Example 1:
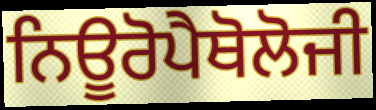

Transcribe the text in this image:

ਨਿਊਰੋਪੈਥੋਲੋਜੀ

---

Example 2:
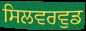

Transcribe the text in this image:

ਸਿਲਵਰਵੁਡ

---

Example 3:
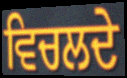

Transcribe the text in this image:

ਵਿਚਲਦੇ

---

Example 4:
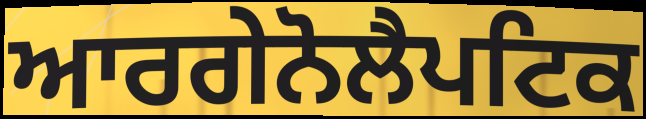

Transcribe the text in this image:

ਆਰਗੇਨੋਲੈਪਟਿਕ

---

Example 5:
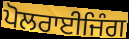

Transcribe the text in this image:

ਪੋਲਰਾਈਜਿੰਗ